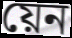
য়েন